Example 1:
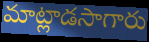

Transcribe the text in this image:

మాట్లాడసాగారు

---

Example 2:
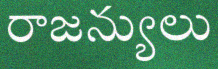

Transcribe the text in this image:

రాజన్యులు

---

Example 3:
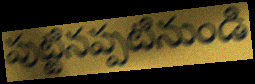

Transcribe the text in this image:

పుట్టినప్పటినుండి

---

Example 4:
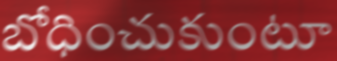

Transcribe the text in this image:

బోధించుకుంటూ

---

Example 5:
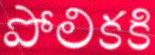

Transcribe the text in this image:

పోలికకి